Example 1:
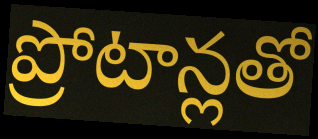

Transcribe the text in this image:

ప్రోటాన్లతో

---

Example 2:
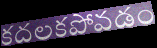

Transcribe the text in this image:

కదలకపోవడం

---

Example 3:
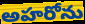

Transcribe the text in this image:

అహరోను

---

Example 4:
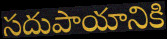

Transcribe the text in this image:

సదుపాయానికి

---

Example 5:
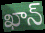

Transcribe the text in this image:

ఖాన్